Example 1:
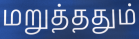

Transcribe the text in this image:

மறுத்ததும்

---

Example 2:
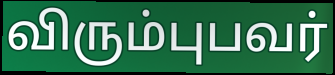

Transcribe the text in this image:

விரும்புபவர்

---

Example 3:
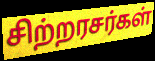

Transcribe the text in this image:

சிற்றரசர்கள்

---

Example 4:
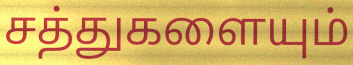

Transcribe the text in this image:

சத்துகளையும்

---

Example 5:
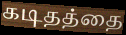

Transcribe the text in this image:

கடிதத்தை